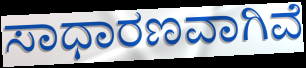
ಸಾಧಾರಣವಾಗಿವೆ